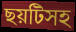
ছয়টিসহ